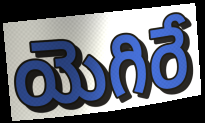
యెగిరే